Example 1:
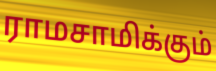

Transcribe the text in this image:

ராமசாமிக்கும்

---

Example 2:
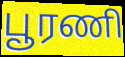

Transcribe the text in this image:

பூரணி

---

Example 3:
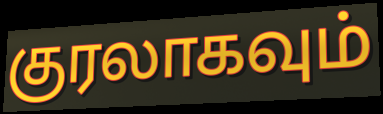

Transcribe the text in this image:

குரலாகவும்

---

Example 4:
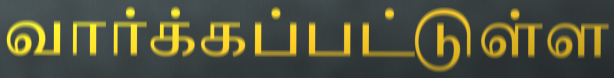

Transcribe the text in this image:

வார்க்கப்பட்டுள்ள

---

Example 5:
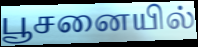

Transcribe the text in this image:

பூசனையில்